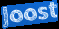
Joost